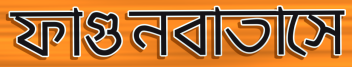
ফাগুনবাতাসে